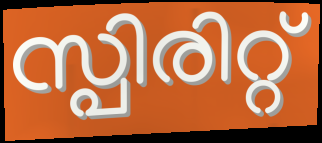
സ്പിരിറ്റ്